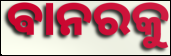
ଵାନରକୁ